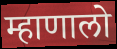
म्हाणालो